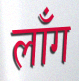
लाँग